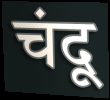
चंदू